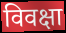
विवक्षा